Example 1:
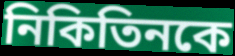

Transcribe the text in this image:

নিকিতিনকে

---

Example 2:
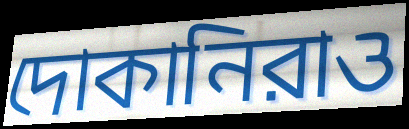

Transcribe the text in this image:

দোকানিরাও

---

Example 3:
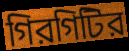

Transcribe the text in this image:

গিরগিটির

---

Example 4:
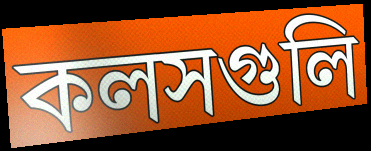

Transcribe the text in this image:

কলসগুলি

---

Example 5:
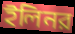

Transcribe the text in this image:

ইলিনর